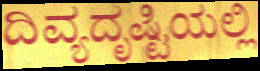
ದಿವ್ಯದೃಷ್ಟಿಯಲ್ಲಿ